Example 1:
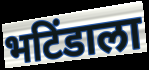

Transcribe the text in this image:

भटिंडाला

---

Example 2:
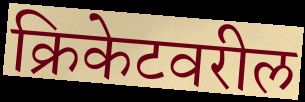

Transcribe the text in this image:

क्रिकेटवरील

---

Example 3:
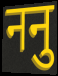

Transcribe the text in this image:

ननु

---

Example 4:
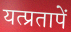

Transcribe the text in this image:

यत्प्रतापें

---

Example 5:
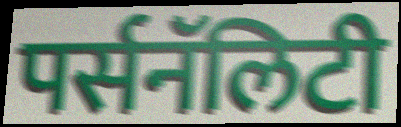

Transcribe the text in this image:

पर्सनॅलिटी